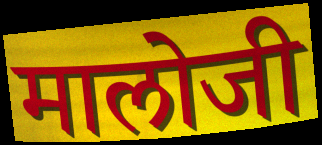
मालोजी